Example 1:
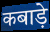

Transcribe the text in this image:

कबाड़े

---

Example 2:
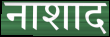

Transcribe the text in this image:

नाशाद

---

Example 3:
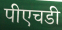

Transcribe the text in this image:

पीएचडी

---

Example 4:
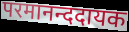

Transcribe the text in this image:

परमानन्ददायक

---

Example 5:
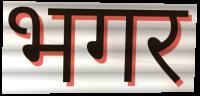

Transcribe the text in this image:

भगर